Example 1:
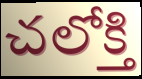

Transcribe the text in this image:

చలోక్తి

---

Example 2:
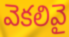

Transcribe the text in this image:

వెకలివై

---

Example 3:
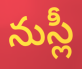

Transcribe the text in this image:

నుస్లీ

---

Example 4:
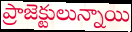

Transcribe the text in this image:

ప్రాజెక్టులున్నాయి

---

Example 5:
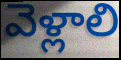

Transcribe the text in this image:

వెళ్లాలి